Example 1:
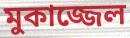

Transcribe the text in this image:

মুকাজ্জেল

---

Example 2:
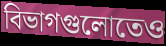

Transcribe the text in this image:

বিভাগগুলোতেও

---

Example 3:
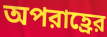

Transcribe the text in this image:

অপরাহ্রের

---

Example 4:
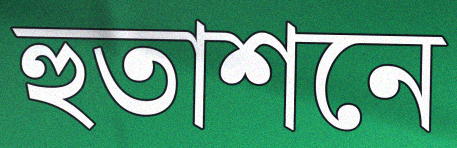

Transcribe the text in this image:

হুতাশনে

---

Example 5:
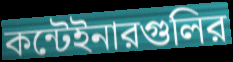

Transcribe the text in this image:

কন্টেইনারগুলির